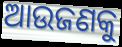
ଆଉଜଣକୁ